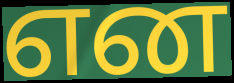
என